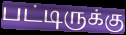
பட்டிருக்கு